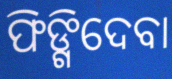
ଫିଙ୍ଗିଦେବା